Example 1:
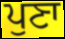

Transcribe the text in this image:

ਪੁਣਾ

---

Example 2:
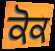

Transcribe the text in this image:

ਕੋਕ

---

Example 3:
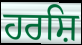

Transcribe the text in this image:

ਹਰਸ਼ਿ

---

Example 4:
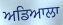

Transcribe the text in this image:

ਅਡਿਆਲਾ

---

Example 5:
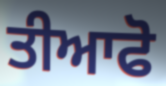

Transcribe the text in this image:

ਤੀਆਫੋ